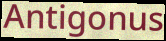
Antigonus